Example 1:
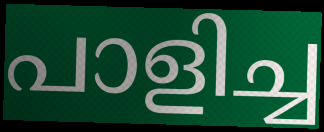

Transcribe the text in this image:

പാളിച്ച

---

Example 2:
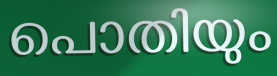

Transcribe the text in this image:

പൊതിയും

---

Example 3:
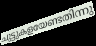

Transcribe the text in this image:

ചുട്ടുകളയേണ്ടതിന്നു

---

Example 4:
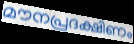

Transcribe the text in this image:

മൗനപ്രദക്ഷിണം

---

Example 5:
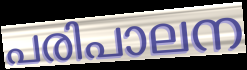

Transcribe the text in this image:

പരിപാലന